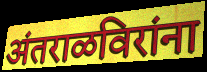
अंतराळविरांना